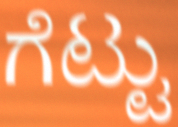
ಗೆಟ್ಟು